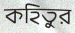
কহিতুর